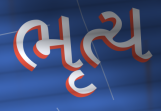
ભૃત્ય